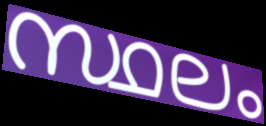
സ്ഥലം